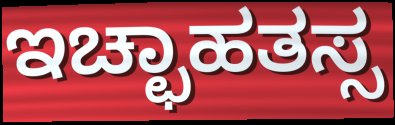
ಇಚ್ಛಾಹತಸ್ಸ